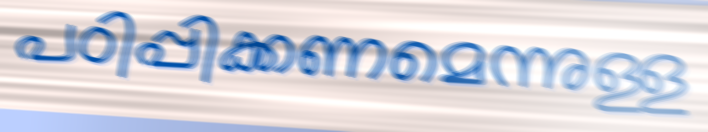
പഠിപ്പിക്കണമെന്നുള്ള